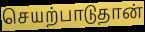
செயற்பாடுதான்